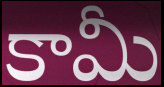
కామీ